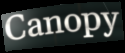
Canopy